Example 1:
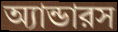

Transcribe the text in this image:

অ্যান্ডারস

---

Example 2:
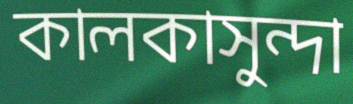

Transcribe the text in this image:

কালকাসুন্দা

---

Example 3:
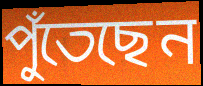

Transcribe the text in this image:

পুঁতেছেন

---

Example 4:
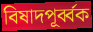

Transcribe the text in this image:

বিষাদপূর্ব্বক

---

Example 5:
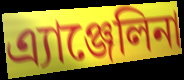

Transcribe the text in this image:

এ্যাঞ্জেলিনা